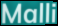
Malli